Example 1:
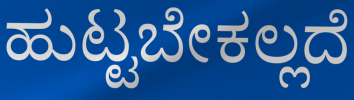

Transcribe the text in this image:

ಹುಟ್ಟಬೇಕಲ್ಲದೆ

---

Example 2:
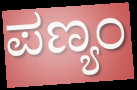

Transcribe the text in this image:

ಪಣ್ಯಂ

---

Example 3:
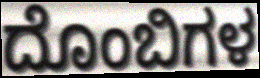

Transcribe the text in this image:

ದೊಂಬಿಗಳ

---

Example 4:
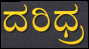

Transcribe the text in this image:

ದರಿಧ್ರ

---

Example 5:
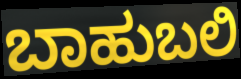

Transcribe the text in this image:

ಬಾಹುಬಲಿ